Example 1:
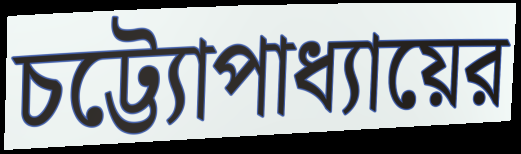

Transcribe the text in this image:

চট্ট্যোপাধ্যায়ের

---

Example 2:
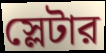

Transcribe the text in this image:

স্লেটার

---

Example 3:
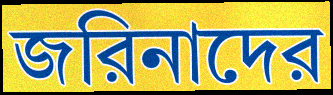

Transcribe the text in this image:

জরিনাদের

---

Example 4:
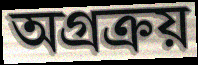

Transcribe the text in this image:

অগ্রক্রয়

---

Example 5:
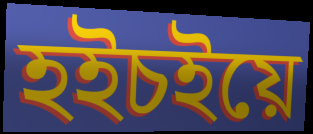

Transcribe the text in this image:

হইচইয়ে